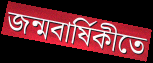
জন্মবাৰ্ষিকীতে